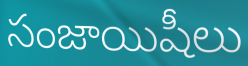
సంజాయిషీలు